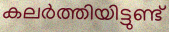
കലർത്തിയിട്ടുണ്ട്